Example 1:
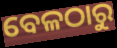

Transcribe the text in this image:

ବେଳଠାରୁ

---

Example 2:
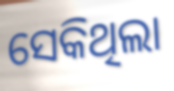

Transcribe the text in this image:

ସେକିଥିଲା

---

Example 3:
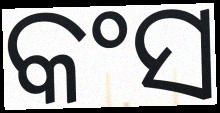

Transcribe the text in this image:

କଂସ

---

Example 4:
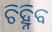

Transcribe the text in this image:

ଚିହ୍ନିବ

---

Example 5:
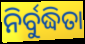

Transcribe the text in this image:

ନିର୍ବୁଦ୍ଧିତା